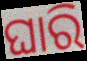
ଘାରି